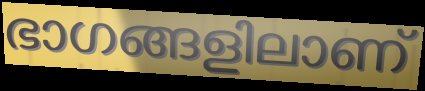
ഭാഗങ്ങളിലാണ്